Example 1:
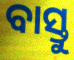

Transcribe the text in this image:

ବାସ୍ତୁ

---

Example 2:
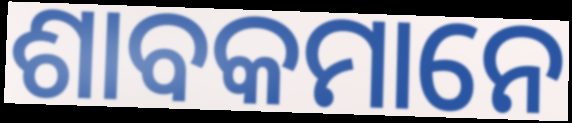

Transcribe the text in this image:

ଶାବକମାନେ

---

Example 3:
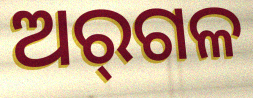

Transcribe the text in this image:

ଅର୍‌ଗଳ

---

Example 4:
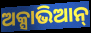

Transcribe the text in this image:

ଅକ୍ସାଭିଆନ୍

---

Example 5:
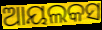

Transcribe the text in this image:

ଆୟଲକସ